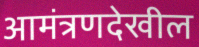
आमंत्रणदेखील